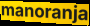
manoranja